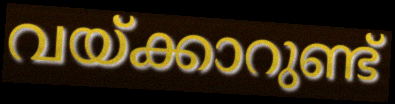
വയ്ക്കാറുണ്ട്